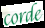
corde